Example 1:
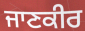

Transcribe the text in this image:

ਜਾਣਕੀਰ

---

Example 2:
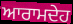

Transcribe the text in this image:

ਆਰਾਮਦੇਹ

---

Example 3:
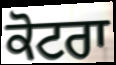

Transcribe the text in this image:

ਕੋਟਰਾ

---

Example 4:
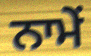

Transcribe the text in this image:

ਨਾਮੇਂ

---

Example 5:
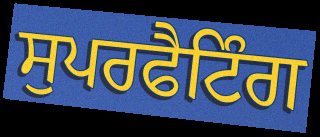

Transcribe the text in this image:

ਸੁਪਰਫੈਟਿੰਗ